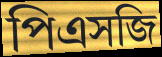
পিএসজি